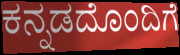
ಕನ್ನಡದೊಂದಿಗೆ